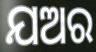
ଯଅର